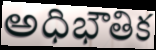
అధిభౌతిక